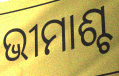
ଭୀମାଶ୍ଚ